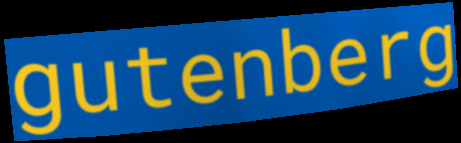
gutenberg